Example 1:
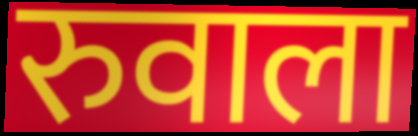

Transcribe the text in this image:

रुवाला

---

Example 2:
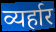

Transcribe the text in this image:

व्यर्हार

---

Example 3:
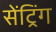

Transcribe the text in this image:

सेंट्रिंग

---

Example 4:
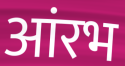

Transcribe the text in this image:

आंरभ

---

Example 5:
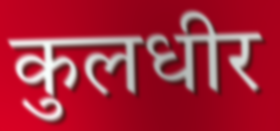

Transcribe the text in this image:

कुलधीर